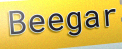
Beegar